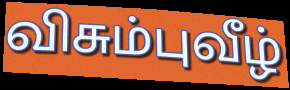
விசும்புவீழ்